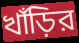
খাঁড়ির